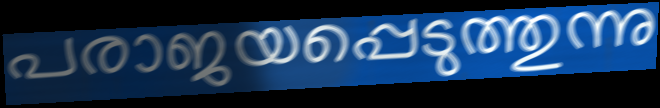
പരാജയപ്പെടുത്തുന്നു